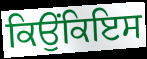
ਕਿਉਂਕਿਇਸ